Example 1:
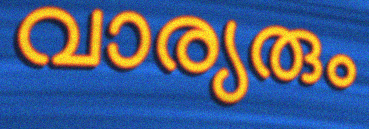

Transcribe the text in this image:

വാര്യരും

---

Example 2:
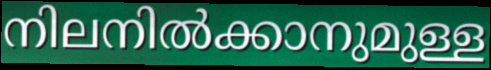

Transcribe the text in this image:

നിലനിൽക്കാനുമുള്ള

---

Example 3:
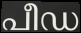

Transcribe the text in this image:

പീഡ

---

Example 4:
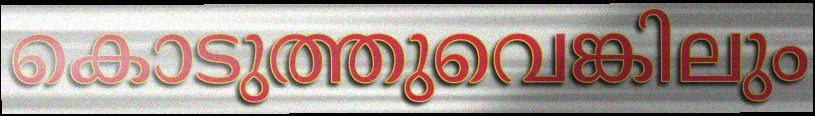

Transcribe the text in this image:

കൊടുത്തുവെങ്കിലും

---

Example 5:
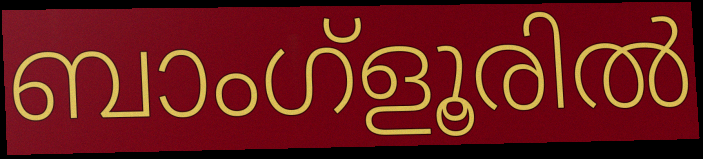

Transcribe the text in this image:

ബാംഗ്ളൂരിൽ